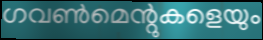
ഗവൺമെന്റുകളെയും